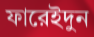
ফারেইদুন